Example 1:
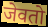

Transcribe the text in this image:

जेवतो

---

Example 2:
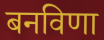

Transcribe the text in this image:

बनविणा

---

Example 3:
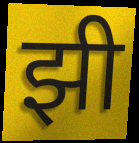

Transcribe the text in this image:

झी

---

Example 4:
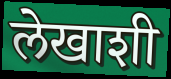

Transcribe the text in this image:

लेखाशी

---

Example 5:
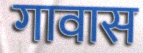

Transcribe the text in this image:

गावास